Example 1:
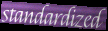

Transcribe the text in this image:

standardized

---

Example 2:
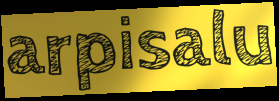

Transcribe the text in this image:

arpisalu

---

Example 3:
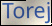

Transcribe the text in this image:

Torej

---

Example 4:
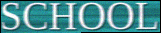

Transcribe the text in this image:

SCHOOL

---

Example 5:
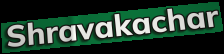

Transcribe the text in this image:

Shravakachar